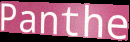
Panthe